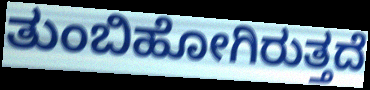
ತುಂಬಿಹೋಗಿರುತ್ತದೆ